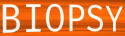
BIOPSY